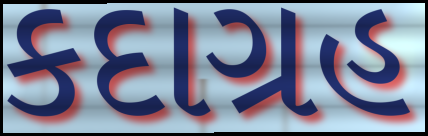
કદાગ્રહ